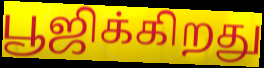
பூஜிக்கிறது